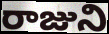
రాజుని